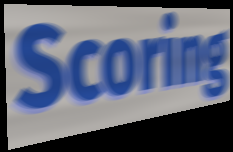
Scoring